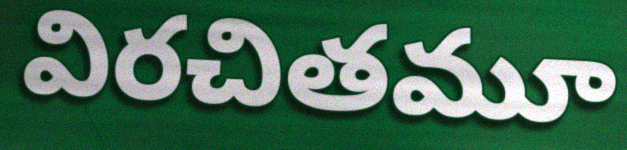
విరచితమూ